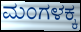
ಮಂಗಳಕ್ಕ